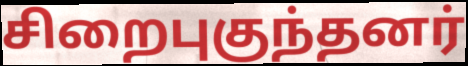
சிறைபுகுந்தனர்